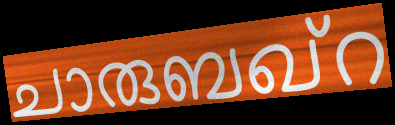
ചാരുബഖ്റ